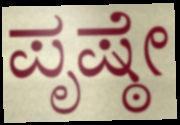
ಪೃಷ್ಠೇ